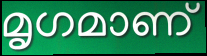
മൃഗമാണ്